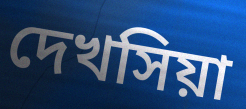
দেখসিয়া